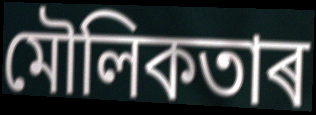
মৌলিকতাৰ